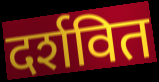
दर्शवित